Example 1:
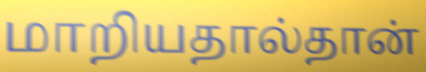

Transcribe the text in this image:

மாறியதால்தான்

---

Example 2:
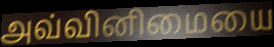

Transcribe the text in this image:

அவ்வினிமையை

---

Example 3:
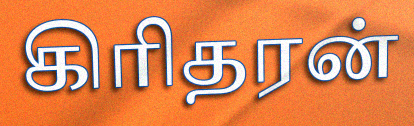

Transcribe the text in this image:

கிரிதரன்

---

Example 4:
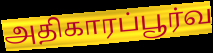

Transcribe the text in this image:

அதிகாரப்பூர்வ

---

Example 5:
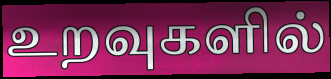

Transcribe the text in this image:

உறவுகளில்